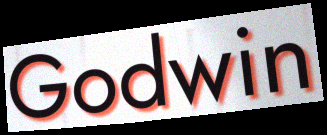
Godwin